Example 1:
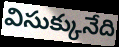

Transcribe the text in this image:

విసుక్కునేది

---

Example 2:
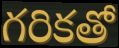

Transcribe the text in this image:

గరికతో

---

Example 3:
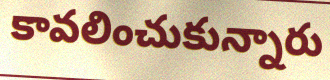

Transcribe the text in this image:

కావలించుకున్నారు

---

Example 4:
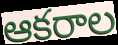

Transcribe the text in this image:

ఆకరాల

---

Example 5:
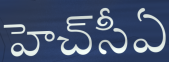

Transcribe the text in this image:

హెచ్‌సీఏ